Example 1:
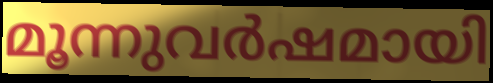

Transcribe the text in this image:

മൂന്നുവർഷമായി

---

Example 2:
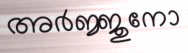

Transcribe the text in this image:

അർജ്ജുനോ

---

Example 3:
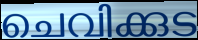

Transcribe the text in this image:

ചെവിക്കുട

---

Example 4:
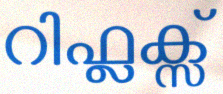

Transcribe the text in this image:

റിഫ്ലക്സ്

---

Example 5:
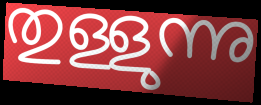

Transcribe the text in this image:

തുള്ളുന്നു